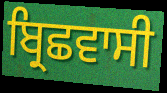
ਬ੍ਰਿਛਵਾਸੀ